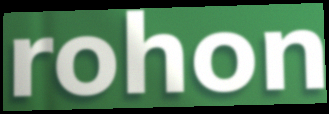
rohon